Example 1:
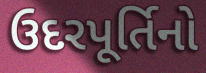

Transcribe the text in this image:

ઉદરપૂર્તિનો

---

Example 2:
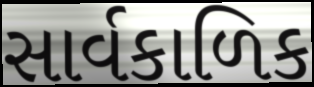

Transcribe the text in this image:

સાર્વકાળિક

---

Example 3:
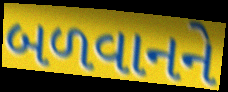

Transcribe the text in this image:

બળવાનને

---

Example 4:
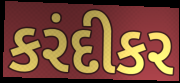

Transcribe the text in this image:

કરંદીકર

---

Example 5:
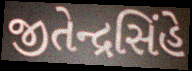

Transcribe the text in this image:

જીતેન્દ્રસિંહે